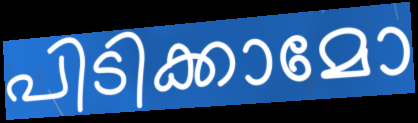
പിടിക്കാമോ